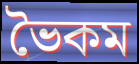
ভৈকম